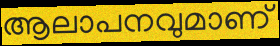
ആലാപനവുമാണ്